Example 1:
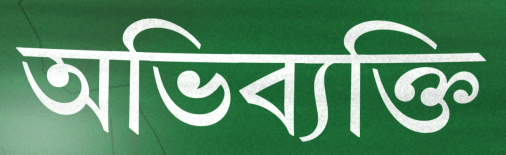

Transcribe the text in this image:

অভিব্যক্তি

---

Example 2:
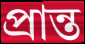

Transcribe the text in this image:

প্ৰান্ত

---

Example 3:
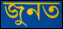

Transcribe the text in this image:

জুনত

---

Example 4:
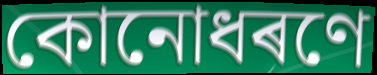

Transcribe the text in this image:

কোনোধৰণে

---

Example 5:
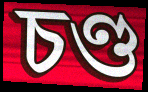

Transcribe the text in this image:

চণ্ড